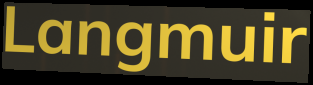
Langmuir